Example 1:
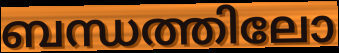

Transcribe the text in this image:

ബന്ധത്തിലോ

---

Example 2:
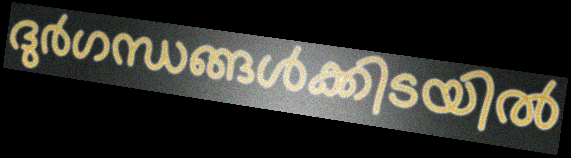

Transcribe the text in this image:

ദുർഗന്ധങ്ങൾക്കിടയിൽ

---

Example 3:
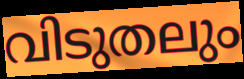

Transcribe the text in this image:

വിടുതലും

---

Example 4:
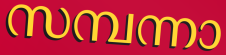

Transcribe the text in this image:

സമ്പന്നാ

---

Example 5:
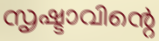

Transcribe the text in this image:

സൃഷ്ടാവിന്റെ